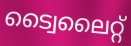
ട്വൈലൈറ്റ്